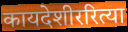
कायदेशीररित्या